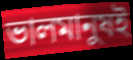
ভালমানুষই